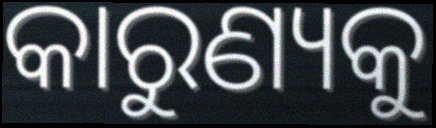
କାରୁଣ୍ୟକୁ